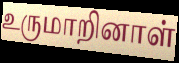
உருமாறினாள்